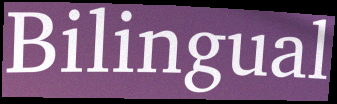
Bilingual